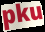
pku